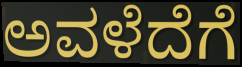
ಅವಳೆದೆಗೆ